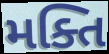
મક્તિ